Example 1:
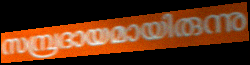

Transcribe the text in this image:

സമ്പ്രദായമായിരുന്നു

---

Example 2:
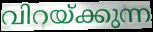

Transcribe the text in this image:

വിറയ്ക്കുന്ന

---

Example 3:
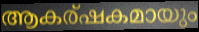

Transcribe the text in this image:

ആകര്ഷകമായും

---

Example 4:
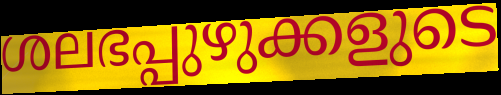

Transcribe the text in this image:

ശലഭപ്പുഴുക്കളുടെ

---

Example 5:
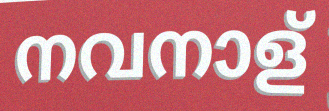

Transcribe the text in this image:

നവനാള്